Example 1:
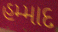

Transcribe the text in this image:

હમ્માદ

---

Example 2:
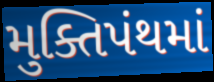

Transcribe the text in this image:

મુક્તિપંથમાં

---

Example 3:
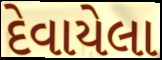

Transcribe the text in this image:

દેવાયેલા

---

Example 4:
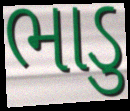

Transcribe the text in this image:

ભાડુ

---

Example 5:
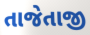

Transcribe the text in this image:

તાજેતાજી